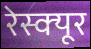
रेस्क्यूर